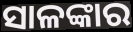
ସାଳଙ୍କାର